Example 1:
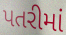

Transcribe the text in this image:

પતરીમાં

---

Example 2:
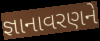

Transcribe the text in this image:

જ્ઞાનાવરણને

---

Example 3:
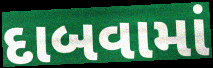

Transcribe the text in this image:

દાબવામાં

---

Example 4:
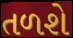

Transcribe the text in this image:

તળશે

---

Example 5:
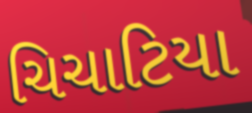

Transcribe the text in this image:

ચિચાટિયા